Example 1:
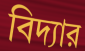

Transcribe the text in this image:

বিদ্যার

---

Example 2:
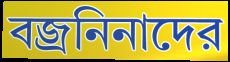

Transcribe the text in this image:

বজ্রনিনাদের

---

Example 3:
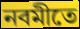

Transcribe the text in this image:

নবমীতে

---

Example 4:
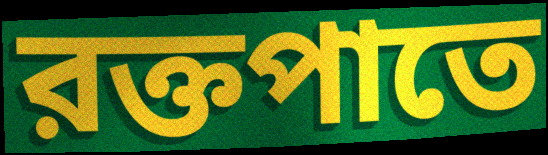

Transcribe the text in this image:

রক্তপাতে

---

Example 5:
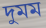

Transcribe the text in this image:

দুমম